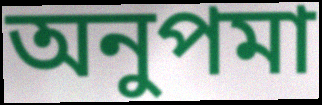
অনুপমা